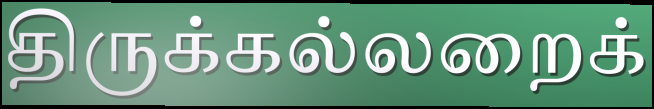
திருக்கல்லறைக்